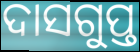
ଦାସଗୁପ୍ତ